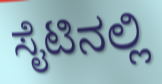
ಸೈಟಿನಲ್ಲಿ